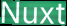
Nuxt